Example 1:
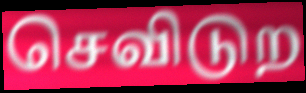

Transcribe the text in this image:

செவிடுற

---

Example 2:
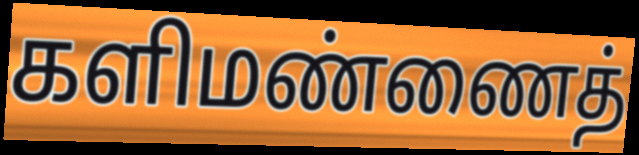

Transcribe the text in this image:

களிமண்ணைத்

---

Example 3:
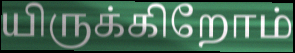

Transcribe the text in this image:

யிருக்கிறோம்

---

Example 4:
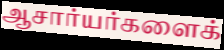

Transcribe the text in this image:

ஆசார்யர்களைக்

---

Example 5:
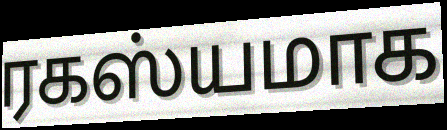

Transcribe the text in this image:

ரகஸ்யமாக